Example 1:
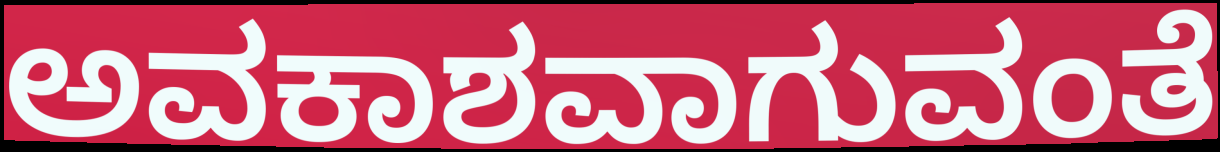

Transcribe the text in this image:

ಅವಕಾಶವಾಗುವಂತೆ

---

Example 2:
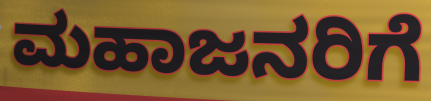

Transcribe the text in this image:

ಮಹಾಜನರಿಗೆ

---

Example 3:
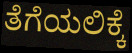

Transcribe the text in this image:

ತೆಗೆಯಲಿಕ್ಕೆ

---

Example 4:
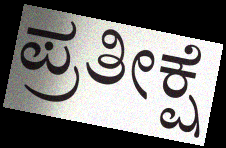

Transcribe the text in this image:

ಪ್ರತೀಕ್ಷೆ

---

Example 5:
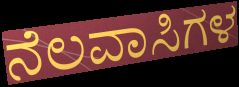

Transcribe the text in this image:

ನೆಲವಾಸಿಗಳ